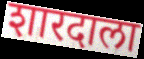
शारदाला